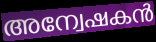
അന്വേഷകൻ